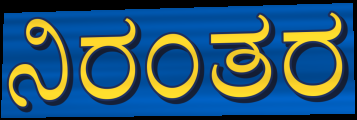
ನಿರಂತರ